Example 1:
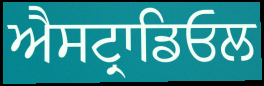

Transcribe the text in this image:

ਐਸਟ੍ਰਾਡਿਓਲ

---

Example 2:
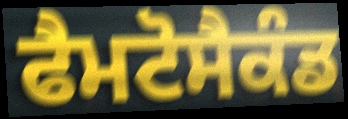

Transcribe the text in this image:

ਫੈਮਟੋਸੈਕੰਡ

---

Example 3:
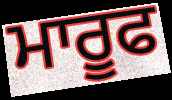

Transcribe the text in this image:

ਮਾਰੂਫ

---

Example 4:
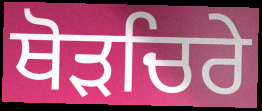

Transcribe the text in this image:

ਥੋੜਚਿਰੇ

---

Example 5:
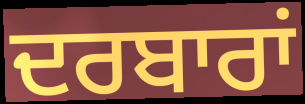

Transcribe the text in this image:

ਦਰਬਾਰਾਂ